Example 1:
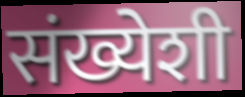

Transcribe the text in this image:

संख्येशी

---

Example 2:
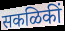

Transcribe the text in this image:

सकळिकीं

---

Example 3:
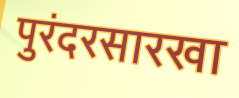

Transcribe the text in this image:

पुरंदरसारखा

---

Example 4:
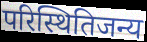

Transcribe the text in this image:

परिस्थितिजन्य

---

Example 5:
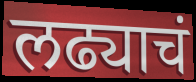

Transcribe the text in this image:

लढ्याचं